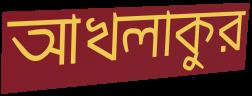
আখলাকুর